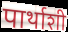
पार्थाशी